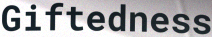
Giftedness